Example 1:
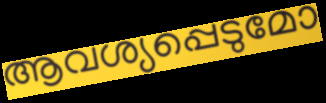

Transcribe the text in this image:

ആവശ്യപ്പെടുമോ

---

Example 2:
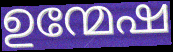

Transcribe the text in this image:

ഉന്മേഷ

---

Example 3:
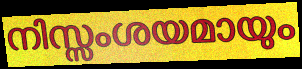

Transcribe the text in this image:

നിസ്സംശയമായും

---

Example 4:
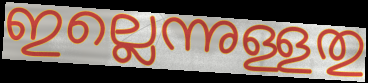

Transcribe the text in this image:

ഇല്ലെന്നുള്ളതു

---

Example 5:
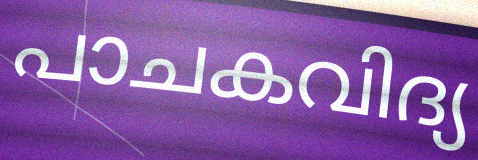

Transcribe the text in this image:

പാചകവിദ്യ